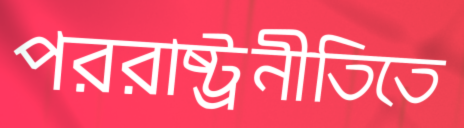
পররাষ্ট্রনীতিতে